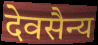
देवसैन्य